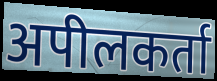
अपीलकर्ता